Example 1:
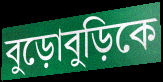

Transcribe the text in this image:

বুড়োবুড়িকে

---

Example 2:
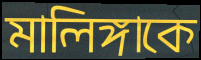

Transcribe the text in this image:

মালিঙ্গাকে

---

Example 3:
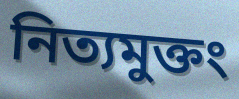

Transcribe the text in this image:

নিত্যমুক্তং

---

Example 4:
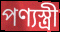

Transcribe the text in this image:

পণ্যস্ত্রী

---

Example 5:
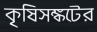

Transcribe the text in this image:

কৃষিসঙ্কটের